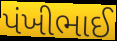
પંખીભાઈ